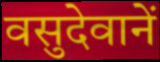
वसुदेवानें